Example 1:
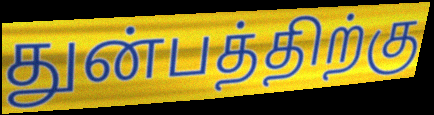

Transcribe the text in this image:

துன்பத்திற்கு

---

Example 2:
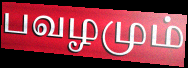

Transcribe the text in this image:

பவழமும்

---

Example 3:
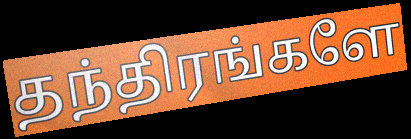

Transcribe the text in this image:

தந்திரங்களே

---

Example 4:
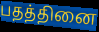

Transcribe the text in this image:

பதத்தினை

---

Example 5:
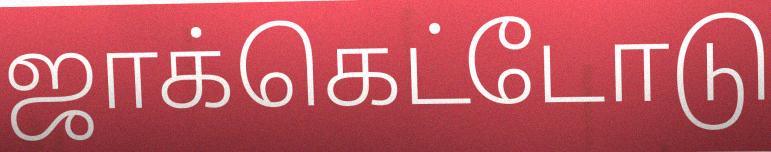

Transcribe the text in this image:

ஜாக்கெட்டோடு